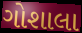
ગોશાલા